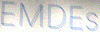
EMDEs